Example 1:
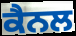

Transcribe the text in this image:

ਕੈਨਲ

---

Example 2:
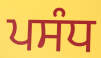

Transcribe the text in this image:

ਪਸੰਧ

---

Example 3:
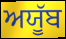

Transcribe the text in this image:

ਅਯੂੱਬ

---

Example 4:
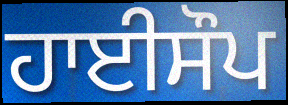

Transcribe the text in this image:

ਹਾਈਸੌਪ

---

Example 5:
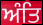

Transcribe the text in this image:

ਅੰਤਿ